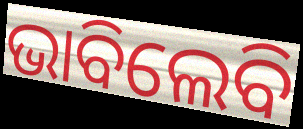
ଭାବିଲେବି